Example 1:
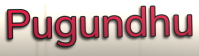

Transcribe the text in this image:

Pugundhu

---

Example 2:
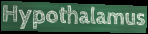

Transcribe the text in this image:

Hypothalamus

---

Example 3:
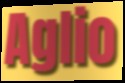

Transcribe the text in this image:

Aglio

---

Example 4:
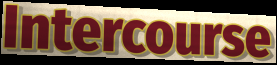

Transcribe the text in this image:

Intercourse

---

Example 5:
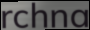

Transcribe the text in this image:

rchna